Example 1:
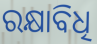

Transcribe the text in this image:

ରକ୍ଷାବିଧି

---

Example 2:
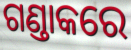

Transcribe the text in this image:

ଗଣ୍ଡାକରେ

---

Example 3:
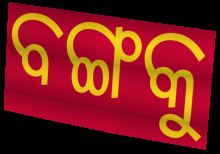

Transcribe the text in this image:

ବଙ୍ଗକୁ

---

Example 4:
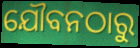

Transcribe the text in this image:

ଯୌବନଠାରୁ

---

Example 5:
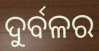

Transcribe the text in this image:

ଦୁର୍ବଳର